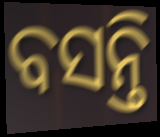
ବସନ୍ତି